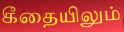
கீதையிலும்